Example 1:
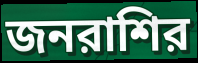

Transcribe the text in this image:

জনরাশির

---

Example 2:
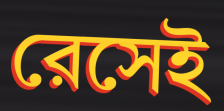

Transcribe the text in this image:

রেসেই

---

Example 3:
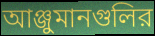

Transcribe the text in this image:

আঞ্জুমানগুলির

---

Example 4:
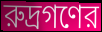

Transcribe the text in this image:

রুদ্রগণের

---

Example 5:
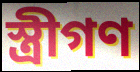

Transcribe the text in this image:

স্ত্রীগণ